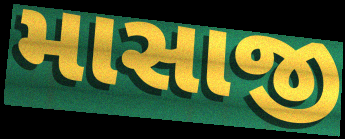
માસાજી